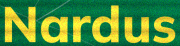
Nardus